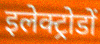
इलेक्ट्रोडों